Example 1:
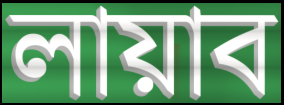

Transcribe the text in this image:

লায়াব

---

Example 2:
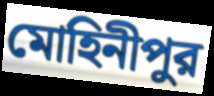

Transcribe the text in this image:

মোহিনীপুর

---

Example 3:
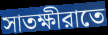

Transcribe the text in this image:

সাতক্ষীরাতে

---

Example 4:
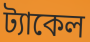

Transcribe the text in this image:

ট্যাকেল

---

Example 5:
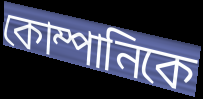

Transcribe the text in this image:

কোম্পানিকে